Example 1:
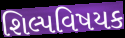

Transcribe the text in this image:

શિલ્પવિષયક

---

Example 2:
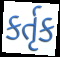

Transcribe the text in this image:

કર્તૃક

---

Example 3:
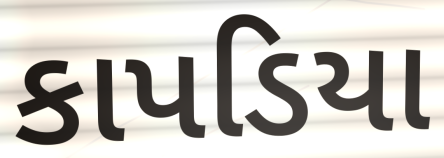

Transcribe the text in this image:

કાપડિયા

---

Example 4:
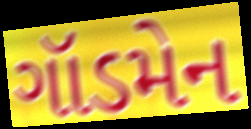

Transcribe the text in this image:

ગૉડમેન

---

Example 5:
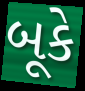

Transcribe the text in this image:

બૂકે